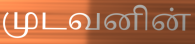
முடவனின்